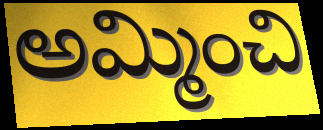
అమ్మించి